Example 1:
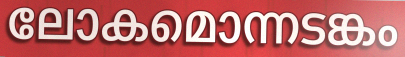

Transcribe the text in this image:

ലോകമൊന്നടങ്കം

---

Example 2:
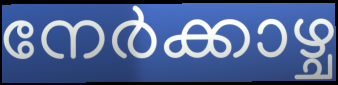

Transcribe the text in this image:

നേർക്കാഴ്ച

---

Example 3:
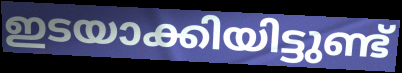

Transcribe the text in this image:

ഇടയാക്കിയിട്ടുണ്ട്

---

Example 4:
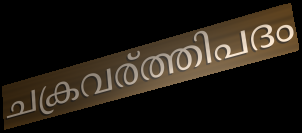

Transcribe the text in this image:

ചക്രവര്ത്തിപദം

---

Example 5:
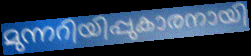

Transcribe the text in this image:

മുന്നറിയിപ്പുകാരനായി